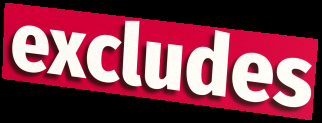
excludes